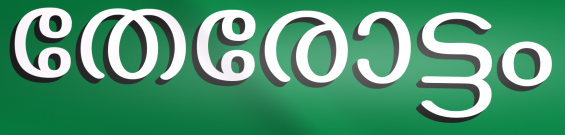
തേരോട്ടം